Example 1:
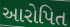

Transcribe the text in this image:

આરોપિત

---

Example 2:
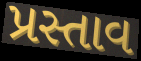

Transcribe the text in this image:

પ્રસ્તાવ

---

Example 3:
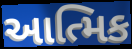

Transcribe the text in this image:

આત્મિક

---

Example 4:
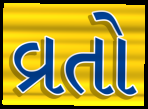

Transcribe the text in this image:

વ્રતો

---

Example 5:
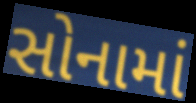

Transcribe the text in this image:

સોનામાં